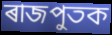
ৰাজপুতক